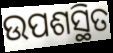
ଉପଶସ୍ଥିତ